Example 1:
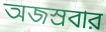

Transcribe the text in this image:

অজস্রবার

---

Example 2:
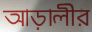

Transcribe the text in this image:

আড়ালীর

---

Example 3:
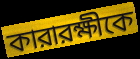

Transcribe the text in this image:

কারারক্ষীকে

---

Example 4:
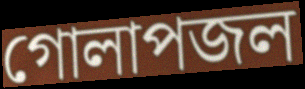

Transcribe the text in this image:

গোলাপজল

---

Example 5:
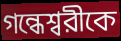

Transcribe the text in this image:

গন্ধেশ্বরীকে